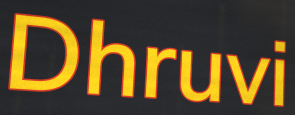
Dhruvi